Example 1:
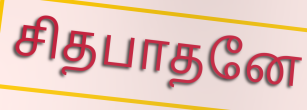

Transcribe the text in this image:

சிதபாதனே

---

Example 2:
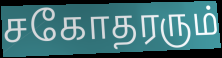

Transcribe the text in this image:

சகோதரரும்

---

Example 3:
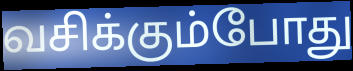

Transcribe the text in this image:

வசிக்கும்போது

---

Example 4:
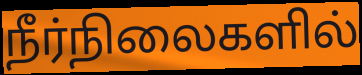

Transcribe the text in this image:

நீர்நிலைகளில்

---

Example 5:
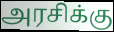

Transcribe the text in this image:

அரசிக்கு